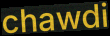
chawdi